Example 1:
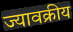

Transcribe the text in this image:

ज्यावक्रीय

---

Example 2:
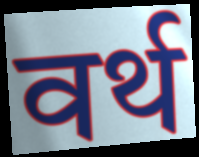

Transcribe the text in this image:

वर्थ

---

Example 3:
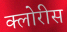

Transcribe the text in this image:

क्लोरीस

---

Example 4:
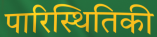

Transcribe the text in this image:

पारिस्थितिकी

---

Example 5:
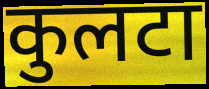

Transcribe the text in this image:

कुलटा